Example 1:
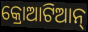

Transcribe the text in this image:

କ୍ରୋଆଟିଆନ୍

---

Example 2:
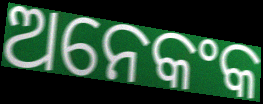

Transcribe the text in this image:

ଅନେକଂକ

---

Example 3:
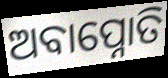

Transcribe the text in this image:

ଅବାପ୍ନୋତି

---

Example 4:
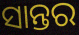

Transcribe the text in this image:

ସାନ୍ତର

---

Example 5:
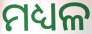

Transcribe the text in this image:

ମଧ୍ୟଳ